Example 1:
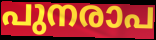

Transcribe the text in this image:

പുനരാപ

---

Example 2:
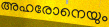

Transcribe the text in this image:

അഹരോനെയും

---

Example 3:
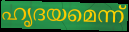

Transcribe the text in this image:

ഹൃദയമെന്ന്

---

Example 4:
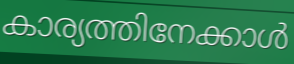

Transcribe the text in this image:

കാര്യത്തിനേക്കാൾ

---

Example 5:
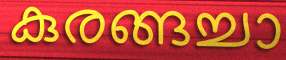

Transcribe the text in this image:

കുരങ്ങച്ചാ